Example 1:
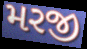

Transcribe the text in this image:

મરજી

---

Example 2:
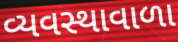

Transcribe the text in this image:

વ્યવસ્થાવાળા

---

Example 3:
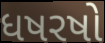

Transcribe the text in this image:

ધષરષો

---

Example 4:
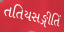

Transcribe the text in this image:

તતિયસઙ્ગીતિં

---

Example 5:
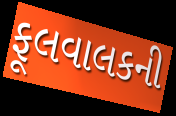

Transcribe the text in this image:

ફૂલવાલકની